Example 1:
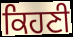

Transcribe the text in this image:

ਕਿਹਣੀ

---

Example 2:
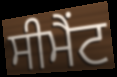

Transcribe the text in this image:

ਸੀਮੈਂਟ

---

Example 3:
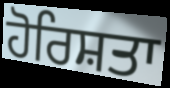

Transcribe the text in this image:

ਹੋਰਿਸ਼ਤਾ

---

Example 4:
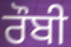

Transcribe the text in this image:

ਰੌਬੀ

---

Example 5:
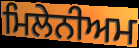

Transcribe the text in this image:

ਮਿਲੇਨੀਅਮ